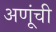
अणूंची